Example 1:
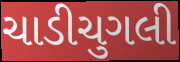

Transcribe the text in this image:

ચાડીચુગલી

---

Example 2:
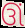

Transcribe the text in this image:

ઊં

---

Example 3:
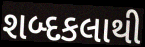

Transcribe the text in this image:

શબ્દકલાથી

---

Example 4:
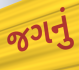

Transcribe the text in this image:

જગનું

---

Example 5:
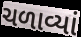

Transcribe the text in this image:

ચળાવ્યાં